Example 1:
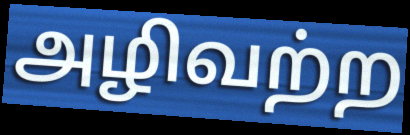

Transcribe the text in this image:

அழிவற்ற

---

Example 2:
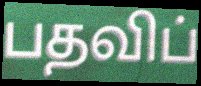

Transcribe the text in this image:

பதவிப்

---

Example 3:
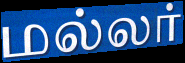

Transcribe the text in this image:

மல்லர்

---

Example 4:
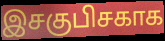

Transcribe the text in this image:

இசகுபிசகாக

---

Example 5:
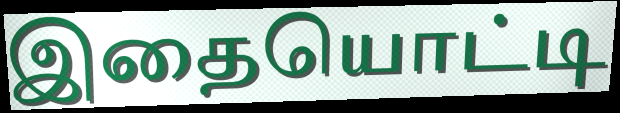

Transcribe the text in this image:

இதையொட்டி